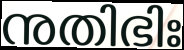
നുതിഭിഃ